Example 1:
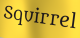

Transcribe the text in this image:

Squirrel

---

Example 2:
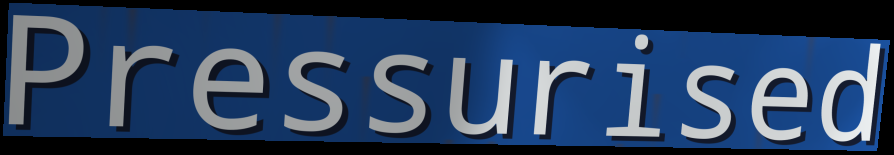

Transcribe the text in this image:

Pressurised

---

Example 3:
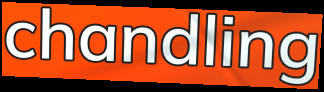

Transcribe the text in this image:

chandling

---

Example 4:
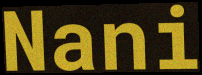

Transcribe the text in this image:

Nani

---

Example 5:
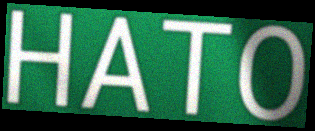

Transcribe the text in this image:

HATO